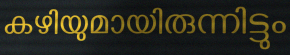
കഴിയുമായിരുന്നിട്ടും